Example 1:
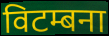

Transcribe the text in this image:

विटम्बना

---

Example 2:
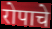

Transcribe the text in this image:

रोपाचे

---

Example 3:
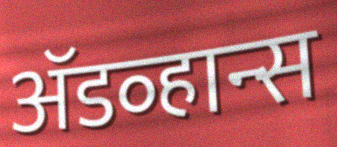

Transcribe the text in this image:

ॲडव्हान्स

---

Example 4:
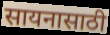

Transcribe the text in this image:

सायनासाठी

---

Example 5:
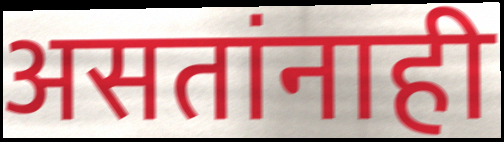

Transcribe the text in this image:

असतांनाही